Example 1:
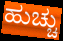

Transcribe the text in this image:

ಹುಚ್ಚು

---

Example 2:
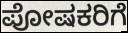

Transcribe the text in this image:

ಪೋಷಕರಿಗೆ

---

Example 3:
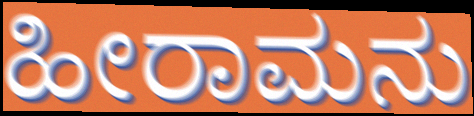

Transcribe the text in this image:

ಹೀರಾಮನು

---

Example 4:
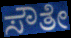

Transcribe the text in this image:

ಸೌತೇ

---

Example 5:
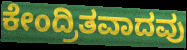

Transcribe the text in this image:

ಕೇಂದ್ರಿತವಾದವು